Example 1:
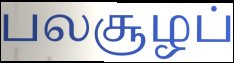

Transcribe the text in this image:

பலசூழப்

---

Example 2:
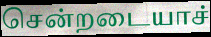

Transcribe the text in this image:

சென்றடையாச்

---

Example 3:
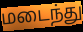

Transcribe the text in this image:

மடைந்து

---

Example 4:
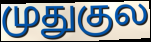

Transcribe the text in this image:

முதுகுல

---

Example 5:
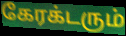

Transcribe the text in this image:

கேரக்டரும்